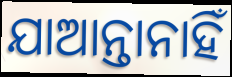
ଯାଆନ୍ତାନାହିଁ